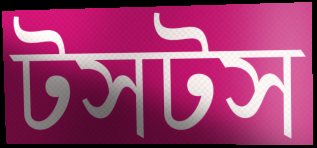
টসটস